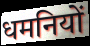
धमनियों